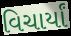
વિચાર્યાં